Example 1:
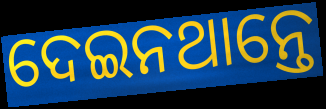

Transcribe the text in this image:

ଦେଇନଥାନ୍ତେ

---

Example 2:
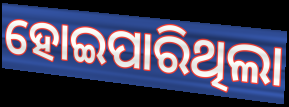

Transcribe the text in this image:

ହୋଇପାରିଥିଲା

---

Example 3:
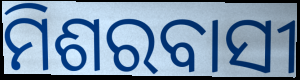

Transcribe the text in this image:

ମିଶରବାସୀ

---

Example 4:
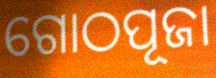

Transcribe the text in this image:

ଗୋଠପୂଜା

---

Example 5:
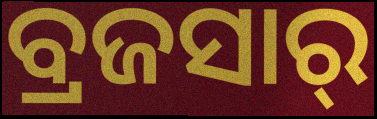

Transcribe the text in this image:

ବ୍ରଜସାର୍